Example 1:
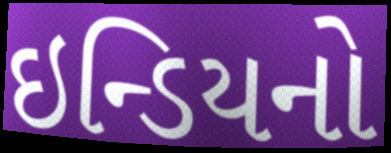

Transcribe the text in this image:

ઇન્ડિયનો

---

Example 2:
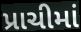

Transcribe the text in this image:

પ્રાચીમાં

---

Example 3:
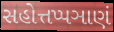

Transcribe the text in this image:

સહોત્તપ્પઞાણં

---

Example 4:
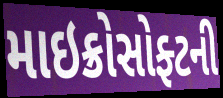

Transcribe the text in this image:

માઇક્રોસોફ્ટની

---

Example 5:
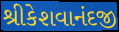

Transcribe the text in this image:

શ્રીકેશવાનંદજી